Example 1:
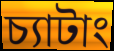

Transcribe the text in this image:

চ্যাটাং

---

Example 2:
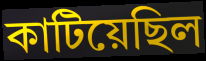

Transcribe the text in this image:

কাটিয়েছিল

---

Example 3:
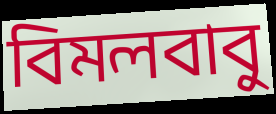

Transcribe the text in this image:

বিমলবাবু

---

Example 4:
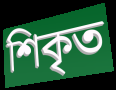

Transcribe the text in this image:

শিকৃত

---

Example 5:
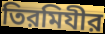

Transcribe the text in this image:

তিরমিযীর